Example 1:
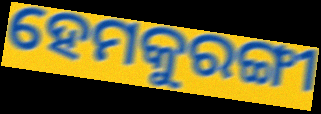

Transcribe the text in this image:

ହେମକୁରଙ୍ଗୀ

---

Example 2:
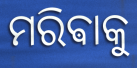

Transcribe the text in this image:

ମରିଵାକୁ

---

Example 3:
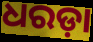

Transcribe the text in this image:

ଧରଡ଼ା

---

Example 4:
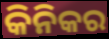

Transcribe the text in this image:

କିନିକର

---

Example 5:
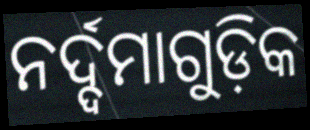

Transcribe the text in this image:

ନର୍ଦ୍ଦମାଗୁଡ଼ିକ